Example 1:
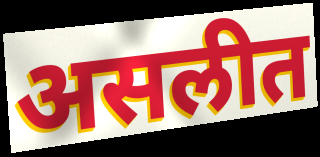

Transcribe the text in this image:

असलीत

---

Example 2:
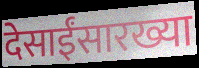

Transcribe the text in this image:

देसाईंसारख्या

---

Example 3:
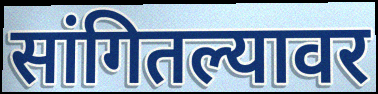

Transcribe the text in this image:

सांगितल्यावर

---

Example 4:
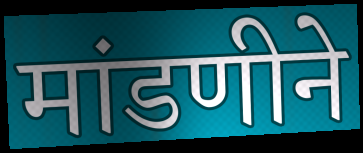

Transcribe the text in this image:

मांडणीने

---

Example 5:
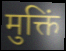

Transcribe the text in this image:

मुक्तिं